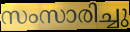
സംസാരിച്ചു